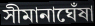
সীমানাঘেঁষা